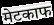
मेटकाफ